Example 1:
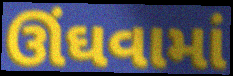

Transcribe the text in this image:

ઊંઘવામાં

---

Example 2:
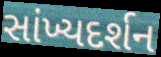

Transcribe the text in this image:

સાંખ્યદર્શન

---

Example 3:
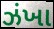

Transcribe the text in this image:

ઝંખા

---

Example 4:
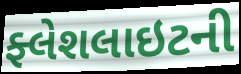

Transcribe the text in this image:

ફ્લેશલાઇટની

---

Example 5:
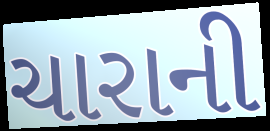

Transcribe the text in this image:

ચારાની